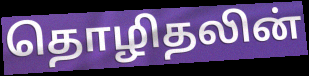
தொழிதலின்